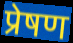
प्रेषण